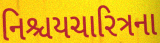
નિશ્ચયચારિત્રના